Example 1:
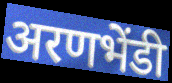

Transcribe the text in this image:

अरणभेंडी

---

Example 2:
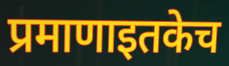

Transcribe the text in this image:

प्रमाणाइतकेच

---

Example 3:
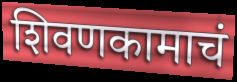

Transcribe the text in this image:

शिवणकामाचं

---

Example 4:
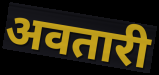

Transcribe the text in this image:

अवतारी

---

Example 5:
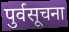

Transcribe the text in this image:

पुर्वसूचना